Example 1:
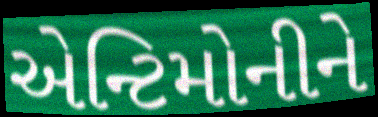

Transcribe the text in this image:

એન્ટિમોનીને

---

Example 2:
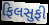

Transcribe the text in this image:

ફિલસુફી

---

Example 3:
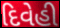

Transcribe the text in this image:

દિવેહી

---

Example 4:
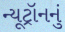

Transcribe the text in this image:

ન્યૂટ્રૉનનું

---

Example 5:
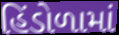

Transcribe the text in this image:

હિંડોળામાં